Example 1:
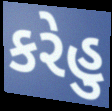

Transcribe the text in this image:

કરેહુ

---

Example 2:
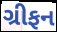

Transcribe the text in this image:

ગ્રીફન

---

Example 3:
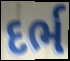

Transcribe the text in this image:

દર્ભ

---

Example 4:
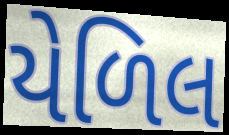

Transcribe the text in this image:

યેળિલ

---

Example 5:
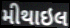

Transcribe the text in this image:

મીથાઇલ